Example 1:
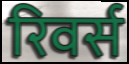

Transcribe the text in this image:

रिवर्स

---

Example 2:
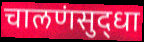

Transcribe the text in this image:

चालणंसुद्धा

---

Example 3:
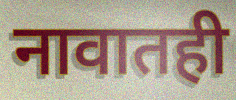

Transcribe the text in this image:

नावातही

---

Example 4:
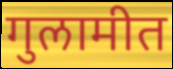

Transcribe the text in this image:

गुलामीत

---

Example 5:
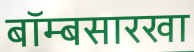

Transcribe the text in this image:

बॉम्बसारखा